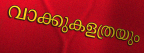
വാക്കുകളത്രയും